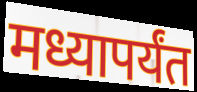
मध्यापर्यंत